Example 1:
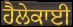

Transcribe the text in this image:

ਹੈਲੇਕਾਈ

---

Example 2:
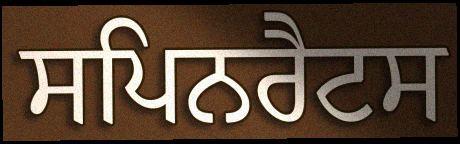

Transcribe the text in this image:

ਸਪਿਨਰੈਟਸ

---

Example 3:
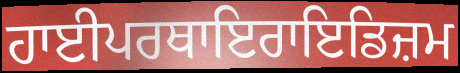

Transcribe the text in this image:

ਹਾਈਪਰਥਾਇਰਾਇਡਿਜ਼ਮ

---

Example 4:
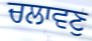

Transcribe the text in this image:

ਚਲਾਵਣੁ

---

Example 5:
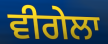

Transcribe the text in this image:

ਵੀਗੇਲਾ